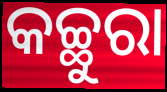
କଚ୍ଛୁରା